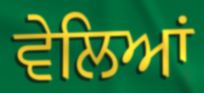
ਵੇਲਿਆਂ